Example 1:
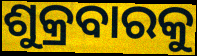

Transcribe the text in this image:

ଶୁକ୍ରବାରକୁ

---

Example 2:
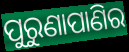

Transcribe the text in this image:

ପୁରୁଣାପାଣିର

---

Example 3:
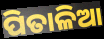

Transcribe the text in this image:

ପିତାଳିଆ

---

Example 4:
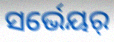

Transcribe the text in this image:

ସର୍ଭେୟର୍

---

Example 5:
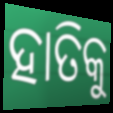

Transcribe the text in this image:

ହାତିକୁ